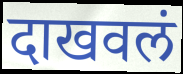
दाखवलं